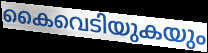
കൈവെടിയുകയും